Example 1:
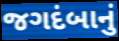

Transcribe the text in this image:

જગદંબાનું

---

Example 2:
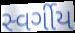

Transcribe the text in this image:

સ્વર્ગીય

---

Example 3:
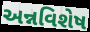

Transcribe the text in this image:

અન્નવિશેષ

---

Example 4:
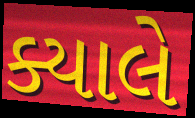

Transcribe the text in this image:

ક્યાલે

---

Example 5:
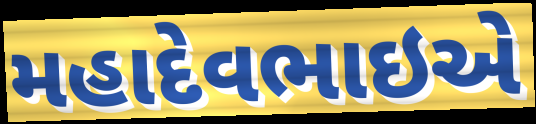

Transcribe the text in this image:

મહાદેવભાઇએ